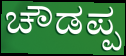
ಚೌಡಪ್ಪ